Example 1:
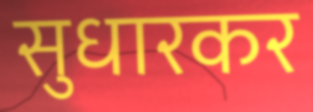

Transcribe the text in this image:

सुधारकर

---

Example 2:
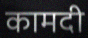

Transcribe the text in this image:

कामदी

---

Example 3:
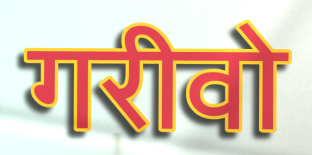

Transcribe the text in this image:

गरीवो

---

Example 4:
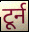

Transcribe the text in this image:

टूर्न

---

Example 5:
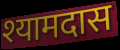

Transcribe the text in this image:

श्यामदास